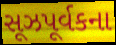
સૂઝપૂર્વકના